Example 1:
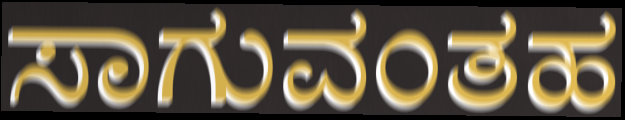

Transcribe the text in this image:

ಸಾಗುವಂತಹ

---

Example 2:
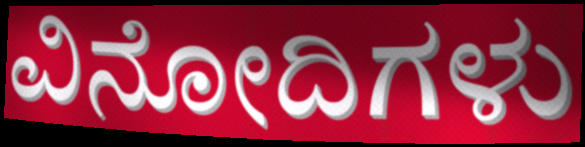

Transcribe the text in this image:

ವಿನೋದಿಗಳು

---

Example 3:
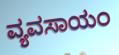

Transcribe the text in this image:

ವ್ಯವಸಾಯಂ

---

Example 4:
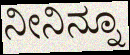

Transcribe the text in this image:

ನೀನಿನ್ನೂ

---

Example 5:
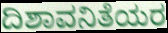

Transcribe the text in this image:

ದಿಶಾವನಿತೆಯರ